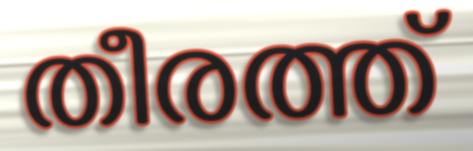
തീരത്ത്